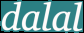
dalal